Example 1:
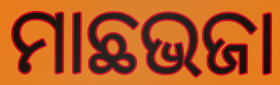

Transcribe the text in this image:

ମାଛଭଜା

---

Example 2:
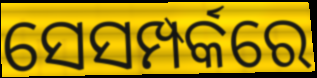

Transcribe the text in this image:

ସେସମ୍ପର୍କରେ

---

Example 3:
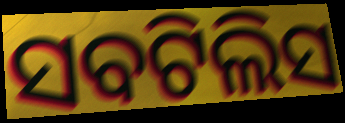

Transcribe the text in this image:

ସବଟିଲିସ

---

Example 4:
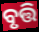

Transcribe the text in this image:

ବୃତ୍ତି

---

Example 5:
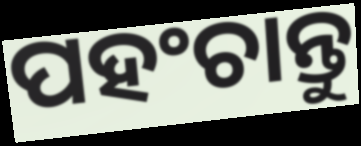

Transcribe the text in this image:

ପହଂଚାନ୍ତୁ